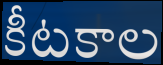
కీటకాల